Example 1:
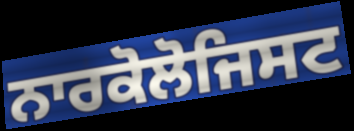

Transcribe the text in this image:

ਨਾਰਕੋਲੋਜਿਸਟ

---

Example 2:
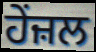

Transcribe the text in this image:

ਹੇਂਜ਼ਲ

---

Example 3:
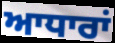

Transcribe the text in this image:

ਆਧਾਰਾਂ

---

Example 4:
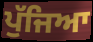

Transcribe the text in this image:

ਪੁੱਜਿਆ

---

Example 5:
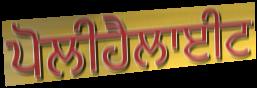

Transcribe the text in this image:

ਪੋਲੀਹੈਲਾਈਟ